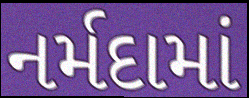
નર્મદામાં